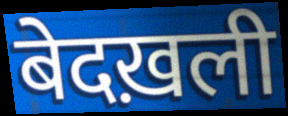
बेदख़ली